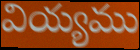
వియ్యము